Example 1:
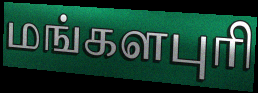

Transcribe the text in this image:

மங்களபுரி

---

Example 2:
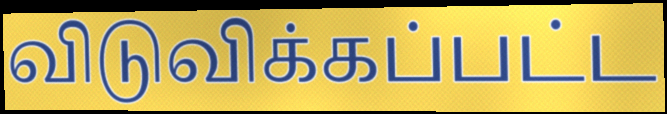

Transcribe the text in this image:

விடுவிக்கப்பட்ட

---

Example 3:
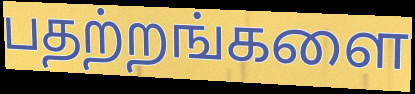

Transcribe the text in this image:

பதற்றங்களை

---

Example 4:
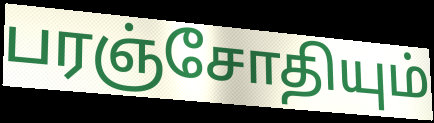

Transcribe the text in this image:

பரஞ்சோதியும்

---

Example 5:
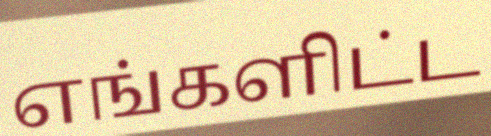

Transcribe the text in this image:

எங்களிட்ட